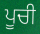
ਪੂਚੀ